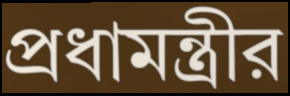
প্রধামন্ত্রীর